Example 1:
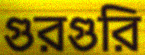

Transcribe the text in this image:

গুরগুরি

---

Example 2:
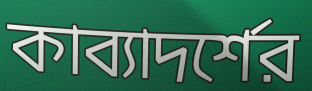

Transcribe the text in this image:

কাব্যাদর্শের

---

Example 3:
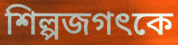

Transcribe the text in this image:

শিল্পজগৎকে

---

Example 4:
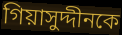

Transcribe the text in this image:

গিয়াসুদ্দীনকে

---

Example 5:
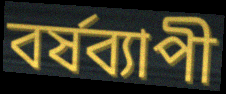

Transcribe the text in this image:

বর্ষব্যাপী